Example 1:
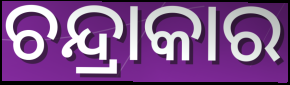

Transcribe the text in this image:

ଚନ୍ଦ୍ରାକାର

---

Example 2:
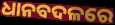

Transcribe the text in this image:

ଧାନବଦଳରେ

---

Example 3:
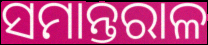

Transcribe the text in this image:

ସମାନ୍ତରାଳ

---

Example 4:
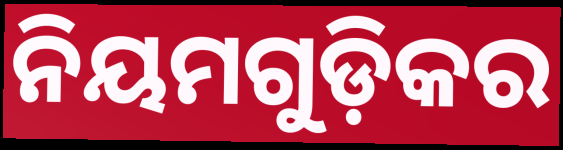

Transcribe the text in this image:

ନିୟମଗୁଡ଼ିକର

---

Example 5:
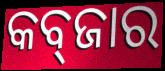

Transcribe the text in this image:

କବ୍‌ଜାର